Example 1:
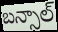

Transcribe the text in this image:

బన్సాల్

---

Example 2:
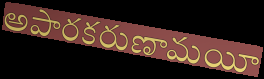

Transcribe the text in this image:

అపారకరుణామయీ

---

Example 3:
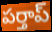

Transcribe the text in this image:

పర్తాప్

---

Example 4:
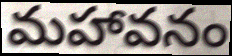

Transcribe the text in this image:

మహావనం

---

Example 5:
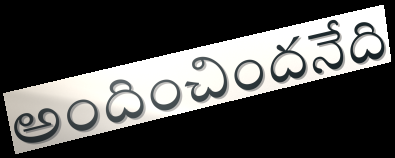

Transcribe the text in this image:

అందించిందనేది